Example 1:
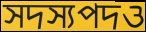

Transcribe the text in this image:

সদস্যপদও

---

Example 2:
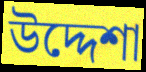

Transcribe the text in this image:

উদ্দেশা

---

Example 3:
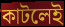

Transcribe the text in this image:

কাটলেই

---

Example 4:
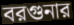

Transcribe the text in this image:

বরগুনার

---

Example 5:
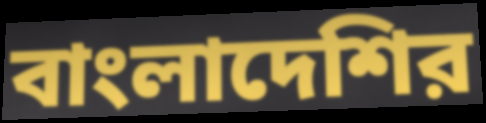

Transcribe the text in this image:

বাংলাদেশির